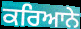
ਕਰਿਆਨੇ